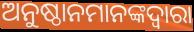
ଅନୁଷ୍ଠାନମାନଙ୍କଦ୍ଵାରା